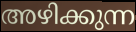
അഴിക്കുന്ന